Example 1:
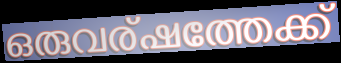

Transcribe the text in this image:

ഒരുവര്ഷത്തേക്ക്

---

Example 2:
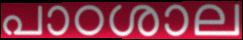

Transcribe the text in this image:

പാഠശാല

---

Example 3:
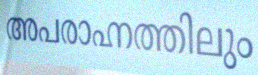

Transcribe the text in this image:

അപരാഹ്നത്തിലും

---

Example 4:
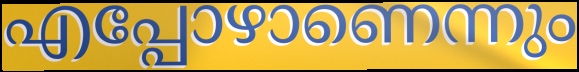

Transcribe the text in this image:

എപ്പോഴാണെന്നും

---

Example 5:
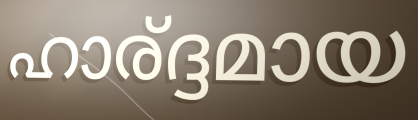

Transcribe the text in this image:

ഹാര്ദ്ദമായ